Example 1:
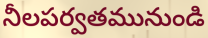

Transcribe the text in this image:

నీలపర్వతమునుండి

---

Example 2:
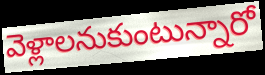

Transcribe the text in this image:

వెళ్లాలనుకుంటున్నారో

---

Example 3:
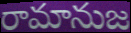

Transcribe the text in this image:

రామానుజ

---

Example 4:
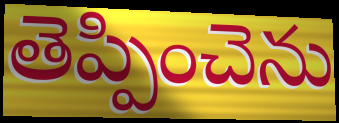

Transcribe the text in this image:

తెప్పించెను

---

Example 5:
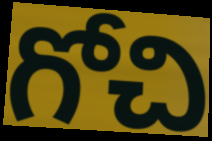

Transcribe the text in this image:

గోచి